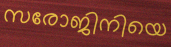
സരോജിനിയെ